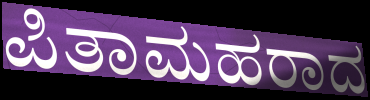
ಪಿತಾಮಹರಾದ